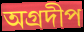
অগ্রদীপ